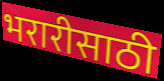
भरारीसाठी